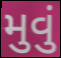
મુવું